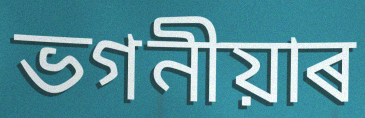
ভগনীয়াৰ